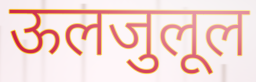
ऊलजुलूल